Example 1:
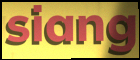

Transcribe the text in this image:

siang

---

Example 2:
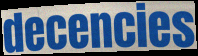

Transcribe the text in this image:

decencies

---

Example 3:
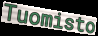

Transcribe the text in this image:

Tuomisto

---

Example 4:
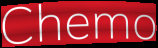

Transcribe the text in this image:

Chemo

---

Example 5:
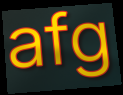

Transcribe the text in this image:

afg